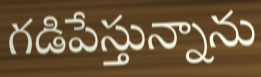
గడిపేస్తున్నాను